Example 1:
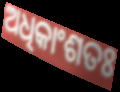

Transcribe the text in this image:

ଅଧିକାଂଶତଃ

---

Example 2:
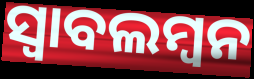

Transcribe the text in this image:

ସ୍ୱାବଲମ୍ବନ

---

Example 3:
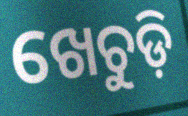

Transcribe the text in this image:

ଖେଚୁଡ଼ି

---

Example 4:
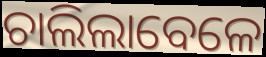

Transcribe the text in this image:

ଚାଲିଲାବେଳେ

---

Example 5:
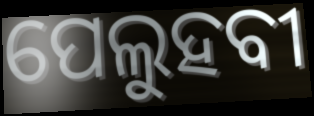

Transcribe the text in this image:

ପେଲୁହବୀ